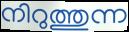
നിറുത്തുന്ന